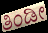
ತಿಂಡೀ